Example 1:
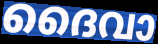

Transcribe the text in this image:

ദൈവാ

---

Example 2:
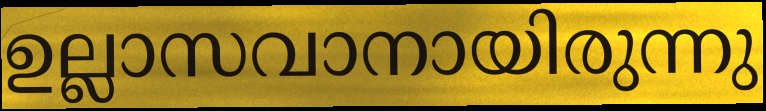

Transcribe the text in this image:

ഉല്ലാസവാനായിരുന്നു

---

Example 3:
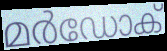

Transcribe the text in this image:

മർഡോക്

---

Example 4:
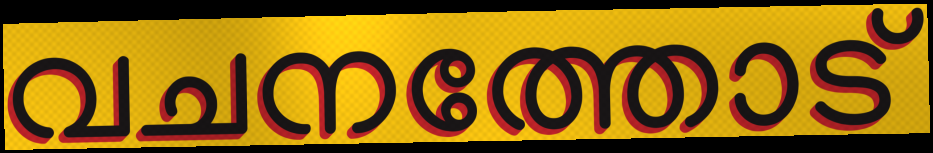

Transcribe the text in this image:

വചനത്തോട്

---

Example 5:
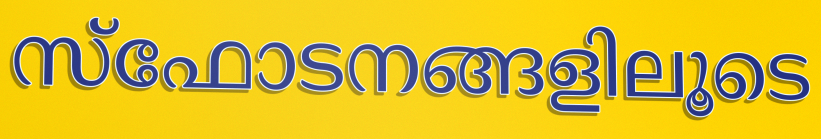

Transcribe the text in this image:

സ്ഫോടനങ്ങളിലൂടെ